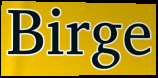
Birge